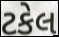
ટકેલ